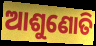
ଆଶୁଣୋତି